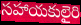
సహాయకులైరి